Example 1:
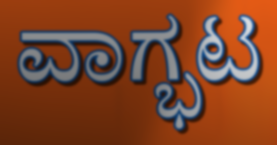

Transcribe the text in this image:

ವಾಗ್ಭಟ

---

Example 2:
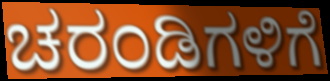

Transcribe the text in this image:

ಚರಂಡಿಗಳಿಗೆ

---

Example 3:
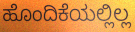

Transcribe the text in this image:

ಹೊಂದಿಕೆಯಲ್ಲಿಲ್ಲ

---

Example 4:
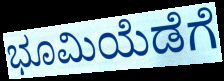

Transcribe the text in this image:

ಭೂಮಿಯೆಡೆಗೆ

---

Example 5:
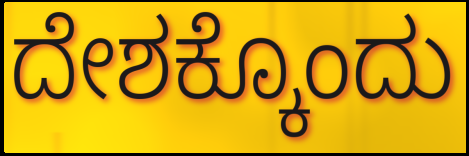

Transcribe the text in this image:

ದೇಶಕ್ಕೊಂದು